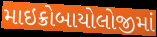
માઇક્રોબાયોલોજીમાં